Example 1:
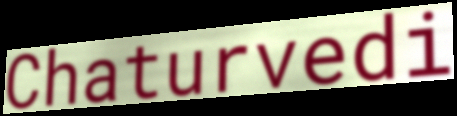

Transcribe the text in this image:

Chaturvedi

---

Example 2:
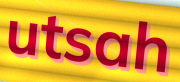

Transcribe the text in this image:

utsah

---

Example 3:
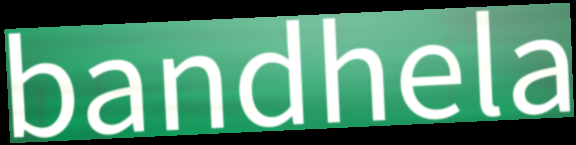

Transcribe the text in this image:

bandhela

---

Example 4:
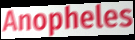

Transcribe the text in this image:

Anopheles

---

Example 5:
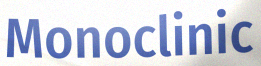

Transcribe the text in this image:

Monoclinic